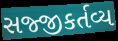
સજ્જીકર્તવ્ય